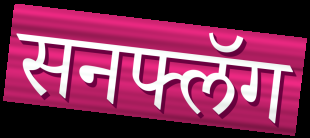
सनफ्लॅग